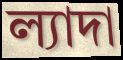
ল্যাদা